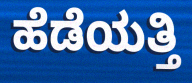
ಹೆಡೆಯತ್ತಿ